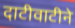
दाटीवाटीने